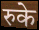
रुके